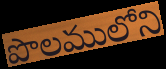
పొలములోని